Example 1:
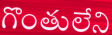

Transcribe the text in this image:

గొంతులేని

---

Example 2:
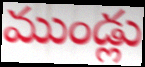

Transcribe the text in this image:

ముండ్లు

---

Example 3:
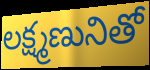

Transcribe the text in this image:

లక్ష్మణునితో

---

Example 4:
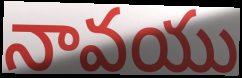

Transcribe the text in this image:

నావయు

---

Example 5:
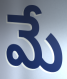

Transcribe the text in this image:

మే